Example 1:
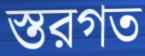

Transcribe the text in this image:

স্তরগত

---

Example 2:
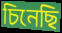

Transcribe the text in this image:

চিনেছি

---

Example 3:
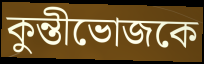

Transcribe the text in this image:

কুন্তীভোজকে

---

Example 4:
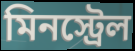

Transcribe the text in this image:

মিনস্ট্রেল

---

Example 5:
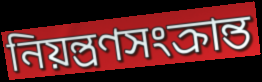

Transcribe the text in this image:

নিয়ন্ত্রণসংক্রান্ত